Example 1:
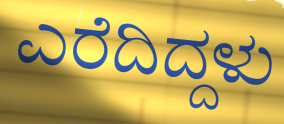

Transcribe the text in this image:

ಎರೆದಿದ್ದಳು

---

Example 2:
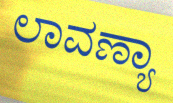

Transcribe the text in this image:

ಲಾವಣ್ಯಾ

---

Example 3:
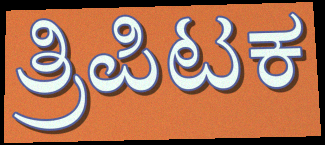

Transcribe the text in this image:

ತ್ರಿಪಿಟಕ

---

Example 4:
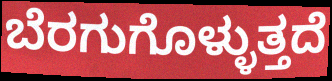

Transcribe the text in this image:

ಬೆರಗುಗೊಳ್ಳುತ್ತದೆ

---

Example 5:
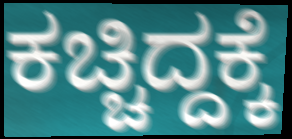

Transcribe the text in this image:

ಕಚ್ಚಿದ್ದಕ್ಕೆ